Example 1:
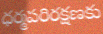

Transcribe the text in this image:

ధర్మపరిరక్షణకు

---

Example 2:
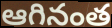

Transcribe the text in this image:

ఆగినంత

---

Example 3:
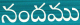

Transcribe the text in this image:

నందము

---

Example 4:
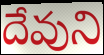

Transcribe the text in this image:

దేవుని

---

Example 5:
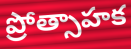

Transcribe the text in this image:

ప్రోత్సాహక